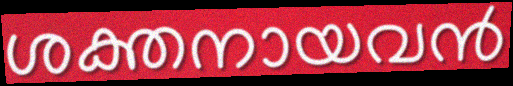
ശക്തനായവൻ